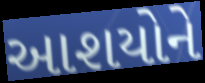
આશયોને